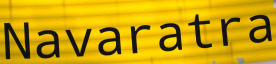
Navaratra